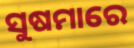
ସୁଷମାରେ